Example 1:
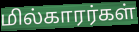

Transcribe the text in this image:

மில்காரர்கள்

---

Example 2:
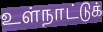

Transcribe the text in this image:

உள்நாட்டுக்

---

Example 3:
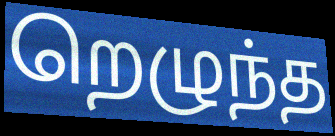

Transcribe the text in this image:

றெழுந்த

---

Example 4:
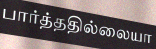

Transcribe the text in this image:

பார்த்ததில்லையா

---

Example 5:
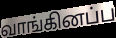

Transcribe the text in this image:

வாங்கினப்ப